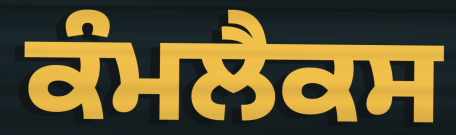
ਕੰਮਲੈਕਸ